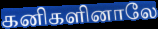
கனிகளினாலே